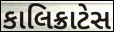
કાલિક્રાટેસ